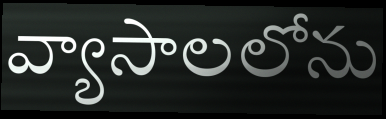
వ్యాసాలలోను